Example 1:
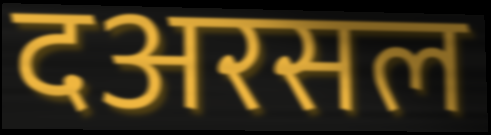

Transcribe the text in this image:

दअरसल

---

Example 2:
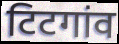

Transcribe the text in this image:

टिटगांव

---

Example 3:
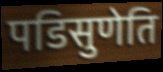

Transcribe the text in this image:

पडिसुणेति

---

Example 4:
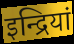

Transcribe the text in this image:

इन्द्रियां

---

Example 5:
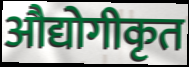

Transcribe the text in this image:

औद्योगीकृत